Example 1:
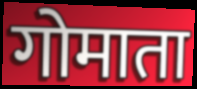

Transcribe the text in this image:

गोमाता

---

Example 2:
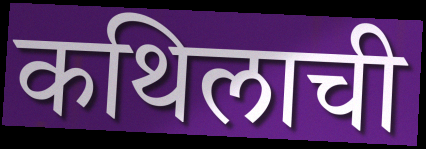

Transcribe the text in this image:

कथिलाची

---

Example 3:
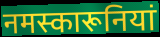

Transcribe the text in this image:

नमस्कारूनियां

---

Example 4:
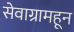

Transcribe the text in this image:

सेवाग्रामहून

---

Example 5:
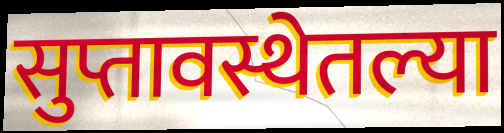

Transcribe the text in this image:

सुप्तावस्थेतल्या